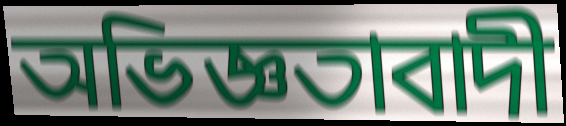
অভিজ্ঞতাবাদী